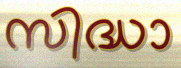
സിദ്ധാ